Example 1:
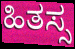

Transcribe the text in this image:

ಹಿತಸ್ಸ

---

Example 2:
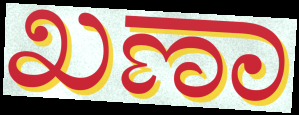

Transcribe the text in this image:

ಖಣಾ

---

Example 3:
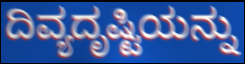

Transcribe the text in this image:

ದಿವ್ಯದೃಷ್ಟಿಯನ್ನು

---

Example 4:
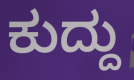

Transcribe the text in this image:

ಕುದ್ದು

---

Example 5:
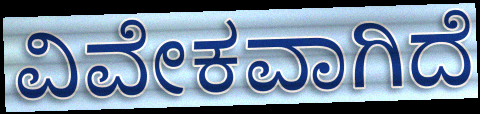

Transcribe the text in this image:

ವಿವೇಕವಾಗಿದೆ